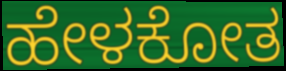
ಹೇಳಕೋತ